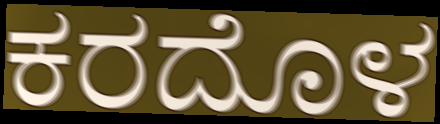
ಕರದೊಳ